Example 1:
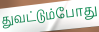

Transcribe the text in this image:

துவட்டும்போது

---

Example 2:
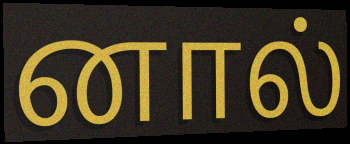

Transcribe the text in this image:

னால்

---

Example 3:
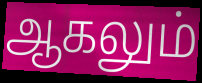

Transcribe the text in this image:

ஆகலும்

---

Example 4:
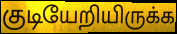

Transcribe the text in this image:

குடியேறியிருக்க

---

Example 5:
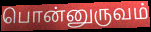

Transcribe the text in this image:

பொன்னுருவம்